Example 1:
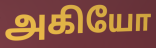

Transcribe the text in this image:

அகியோ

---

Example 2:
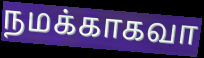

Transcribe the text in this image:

நமக்காகவா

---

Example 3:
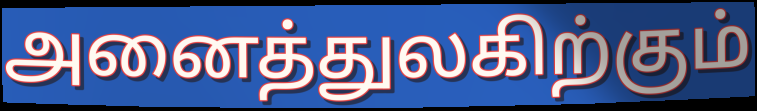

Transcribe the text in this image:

அனைத்துலகிற்கும்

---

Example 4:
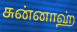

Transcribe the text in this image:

சுன்னாஹ்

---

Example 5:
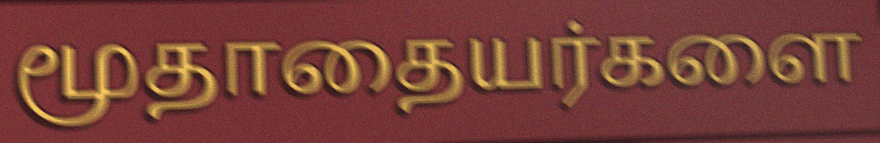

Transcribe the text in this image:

மூதாதையர்களை